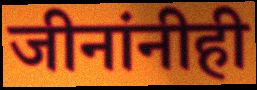
जीनांनीही